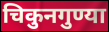
चिकुनगुण्या